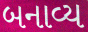
બનાવ્ય